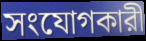
সংযোগকারী